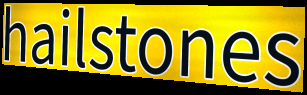
hailstones